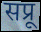
सप्रू